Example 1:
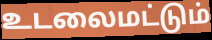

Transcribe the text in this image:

உடலைமட்டும்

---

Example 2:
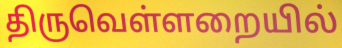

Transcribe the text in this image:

திருவெள்ளறையில்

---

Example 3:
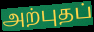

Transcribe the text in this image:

அற்புதப்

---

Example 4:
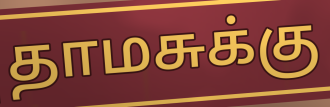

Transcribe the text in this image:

தாமசுக்கு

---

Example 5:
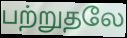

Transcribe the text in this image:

பற்றுதலே